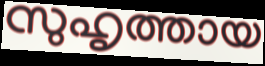
സുഹൃത്തായ